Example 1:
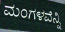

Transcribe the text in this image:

ಮಂಗಳವೆನ್ನಿ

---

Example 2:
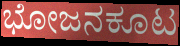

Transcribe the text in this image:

ಭೋಜನಕೂಟ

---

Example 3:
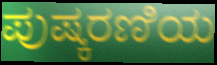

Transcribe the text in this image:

ಪುಷ್ಕರಣಿಯ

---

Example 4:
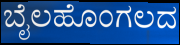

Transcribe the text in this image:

ಬೈಲಹೊಂಗಲದ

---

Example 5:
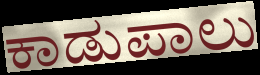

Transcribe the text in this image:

ಕಾಡುಪಾಲು